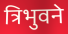
त्रिभुवने